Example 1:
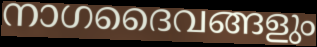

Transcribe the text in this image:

നാഗദൈവങ്ങളും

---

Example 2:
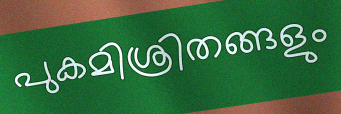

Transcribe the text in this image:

പുകമിശ്രിതങ്ങളും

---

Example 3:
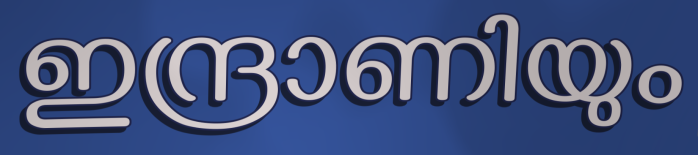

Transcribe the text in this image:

ഇന്ദ്രാണിയും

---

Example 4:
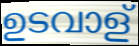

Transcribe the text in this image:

ഉടവാള്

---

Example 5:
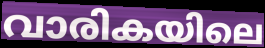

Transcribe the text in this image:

വാരികയിലെ